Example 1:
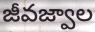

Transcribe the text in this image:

జీవజ్వాల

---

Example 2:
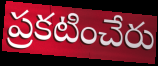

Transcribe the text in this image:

ప్రకటించేరు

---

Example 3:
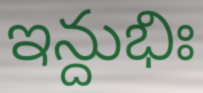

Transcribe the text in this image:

ఇన్దుభిః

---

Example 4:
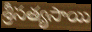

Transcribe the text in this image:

శ్రీసత్యసాయి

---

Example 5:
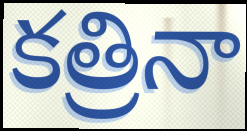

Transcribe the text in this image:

కత్రినా